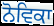
ਨੋਵਿਕਾ